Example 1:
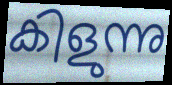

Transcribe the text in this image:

കിളുന്നു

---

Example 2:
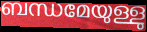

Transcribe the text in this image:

ബന്ധമേയുള്ളു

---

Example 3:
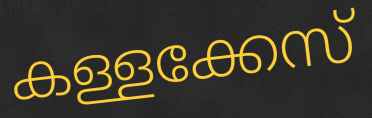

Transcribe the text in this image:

കള്ളക്കേസ്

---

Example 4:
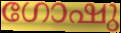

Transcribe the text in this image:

ഗോഷു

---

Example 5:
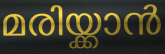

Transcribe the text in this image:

മരിയ്ക്കാൻ